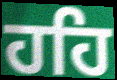
ਹਹਿ